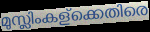
മുസ്ലിംകള്ക്കെതിരെ